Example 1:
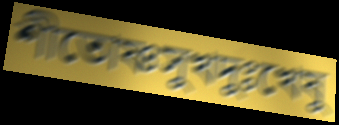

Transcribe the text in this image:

শীতোষ্ণসুখদুঃখেষু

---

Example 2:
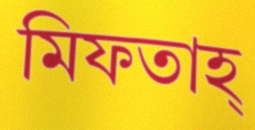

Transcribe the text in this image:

মিফতাহ্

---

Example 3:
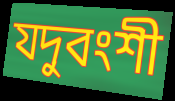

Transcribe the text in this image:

যদুবংশী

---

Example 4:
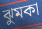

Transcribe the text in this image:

ঝুমকা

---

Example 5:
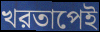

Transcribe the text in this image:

খরতাপেই